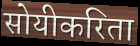
सोयीकरिता